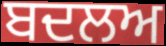
ਬਦਲਅ